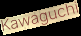
Kawaguchi